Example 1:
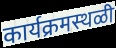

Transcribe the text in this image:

कार्यक्रमस्थळी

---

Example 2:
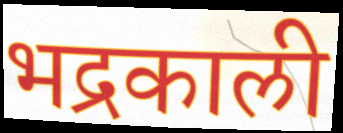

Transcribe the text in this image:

भद्रकाली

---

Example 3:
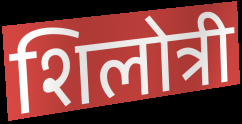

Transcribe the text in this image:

शिलोत्री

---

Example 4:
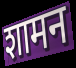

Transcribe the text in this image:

शामन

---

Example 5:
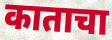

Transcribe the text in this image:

काताचा